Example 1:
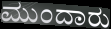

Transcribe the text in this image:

ಮುಂದಾರು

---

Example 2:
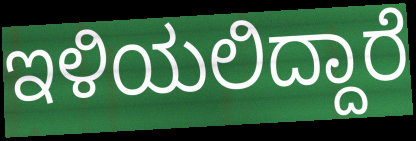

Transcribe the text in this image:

ಇಳಿಯಲಿದ್ದಾರೆ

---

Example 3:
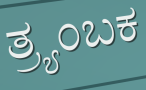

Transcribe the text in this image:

ತ್ರ್ಯಂಬಕ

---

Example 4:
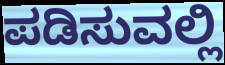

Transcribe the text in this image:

ಪಡಿಸುವಲ್ಲಿ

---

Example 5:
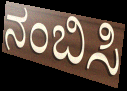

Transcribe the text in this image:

ನಂಬಿಸಿ